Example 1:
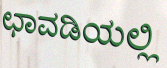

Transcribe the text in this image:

ಛಾವಡಿಯಲ್ಲಿ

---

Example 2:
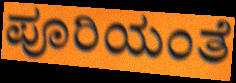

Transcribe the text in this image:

ಪೂರಿಯಂತೆ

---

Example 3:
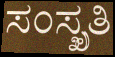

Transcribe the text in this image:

ಸಂಸ್ಖೃತಿ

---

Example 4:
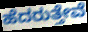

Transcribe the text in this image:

ಹೆದರುತ್ತೇವೆ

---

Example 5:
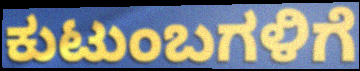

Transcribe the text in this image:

ಕುಟುಂಬಗಳಿಗೆ